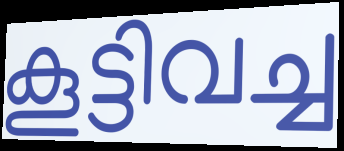
കൂട്ടിവച്ച